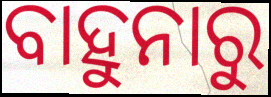
ବାହୁନାରୁ